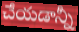
చేయడాన్నీ